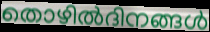
തൊഴിൽദിനങ്ങൾ